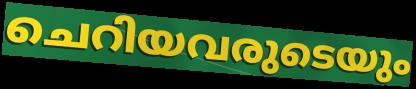
ചെറിയവരുടെയും